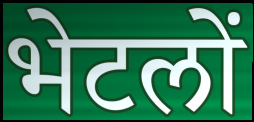
भेटलों